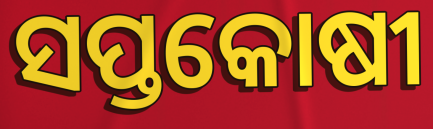
ସପ୍ତକୋଷୀ